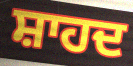
ਸ਼ਾਹਦ